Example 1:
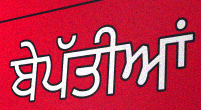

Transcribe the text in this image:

ਬੇਪੱਤੀਆਂ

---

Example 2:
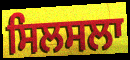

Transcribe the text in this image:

ਸਿਲਸਲਾ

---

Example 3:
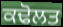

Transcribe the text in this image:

ਕਢੋਲਤ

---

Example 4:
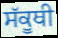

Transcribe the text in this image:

ਸੱਕੂਥੀ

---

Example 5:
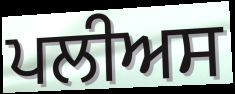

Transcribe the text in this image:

ਪਲੀਅਸ